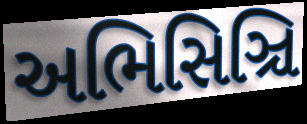
અભિસિઞ્ચિ